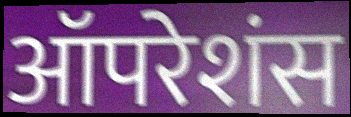
ऑपरेशंस